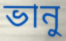
ভানু